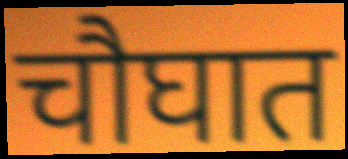
चौघात